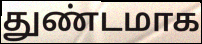
துண்டமாக